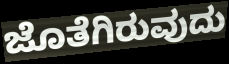
ಜೊತೆಗಿರುವುದು